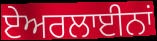
ਏਅਰਲਾਈਨਾਂ